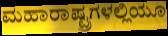
ಮಹಾರಾಷ್ಟ್ರಗಳಲ್ಲಿಯೂ